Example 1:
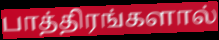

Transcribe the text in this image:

பாத்திரங்களால்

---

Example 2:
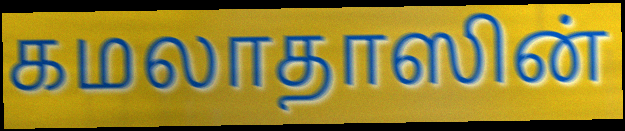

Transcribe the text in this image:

கமலாதாஸின்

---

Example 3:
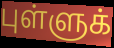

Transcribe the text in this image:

புள்ளுக்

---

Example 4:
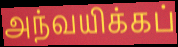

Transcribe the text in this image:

அந்வயிக்கப்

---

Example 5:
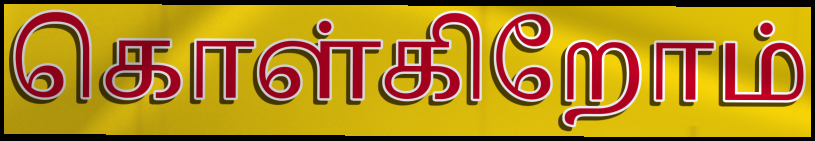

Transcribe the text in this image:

கொள்கிறோம்